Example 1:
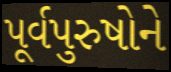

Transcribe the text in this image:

પૂર્વપુરુષોને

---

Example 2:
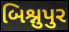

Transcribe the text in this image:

બિશ્નુપુર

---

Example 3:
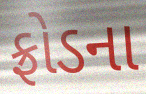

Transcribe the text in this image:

ફ્રોડના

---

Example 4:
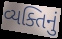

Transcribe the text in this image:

વ્યક્તિનું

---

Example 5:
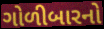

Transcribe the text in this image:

ગોળીબારનો